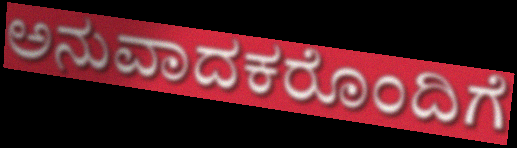
ಅನುವಾದಕರೊಂದಿಗೆ